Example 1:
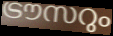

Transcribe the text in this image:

ട്രൗസറും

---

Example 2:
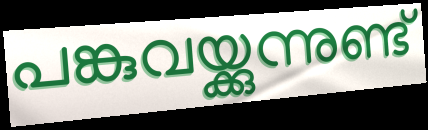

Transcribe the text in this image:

പങ്കുവയ്ക്കുന്നുണ്ട്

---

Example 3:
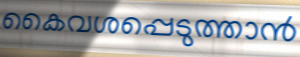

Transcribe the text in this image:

കൈവശപ്പെടുത്താൻ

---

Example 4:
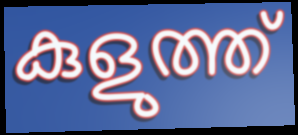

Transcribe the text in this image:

കുളുത്ത്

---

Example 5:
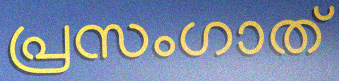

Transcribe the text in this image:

പ്രസംഗാത്